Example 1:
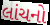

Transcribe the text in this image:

લાંચનો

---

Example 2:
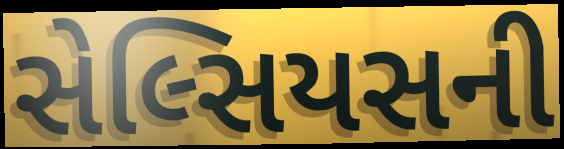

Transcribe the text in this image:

સેલ્સિયસની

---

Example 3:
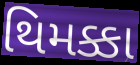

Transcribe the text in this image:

થિમક્કા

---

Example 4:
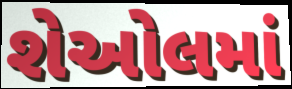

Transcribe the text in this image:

શેઓલમાં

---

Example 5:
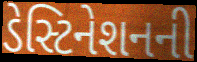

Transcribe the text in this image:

ડેસ્ટિનેશનની